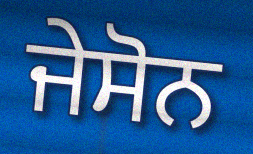
ਜੇਸੋਨ